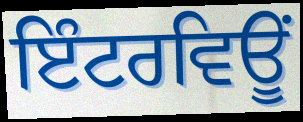
ਇੰਟਰਵਿਊਂ